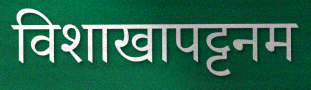
विशाखापट्टनम